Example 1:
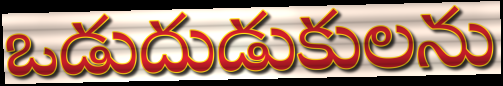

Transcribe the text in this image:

ఒడుదుడుకులను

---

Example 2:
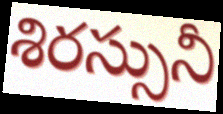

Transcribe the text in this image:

శిరస్సునీ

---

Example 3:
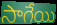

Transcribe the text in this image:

సాగేయి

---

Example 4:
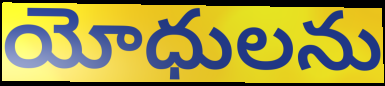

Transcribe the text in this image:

యోధులను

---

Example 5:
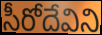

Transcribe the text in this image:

సీరోదేవిని